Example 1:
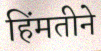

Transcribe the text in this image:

हिंमतीने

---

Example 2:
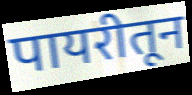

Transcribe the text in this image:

पायरीतून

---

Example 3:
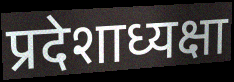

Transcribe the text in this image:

प्रदेशाध्यक्षा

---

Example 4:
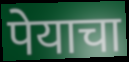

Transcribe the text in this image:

पेयाचा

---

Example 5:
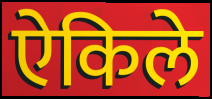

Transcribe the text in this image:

ऐकिले